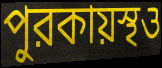
পুরকায়স্থও